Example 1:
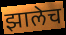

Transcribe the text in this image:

झालेच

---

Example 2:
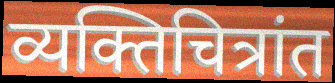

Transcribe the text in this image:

व्यक्तिचित्रांत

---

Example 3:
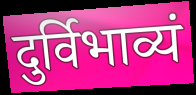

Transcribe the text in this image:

दुर्विभाव्यं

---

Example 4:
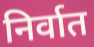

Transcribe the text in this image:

निर्वात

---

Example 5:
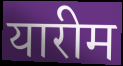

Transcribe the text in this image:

यारीम